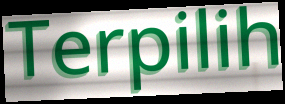
Terpilih